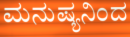
ಮನುಷ್ಯನಿಂದ